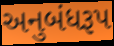
અનુબંધરૂપ